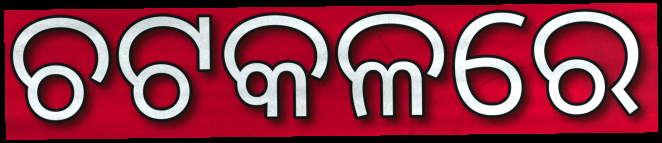
ଚଟକଳରେ